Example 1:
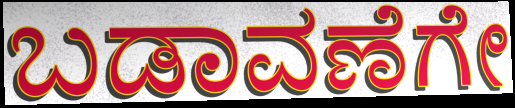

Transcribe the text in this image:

ಬಡಾವಣೆಗೇ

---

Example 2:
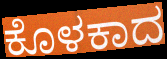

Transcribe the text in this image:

ಕೊಳಕಾದ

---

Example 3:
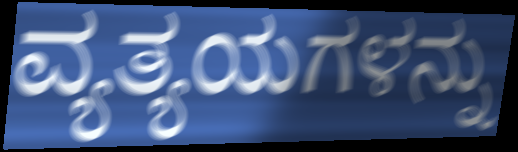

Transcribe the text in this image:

ವ್ಯತ್ಯಯಗಳನ್ನು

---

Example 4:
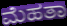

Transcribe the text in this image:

ಮೆಹತಾ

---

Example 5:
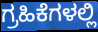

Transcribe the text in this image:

ಗ್ರಹಿಕೆಗಳಲ್ಲಿ